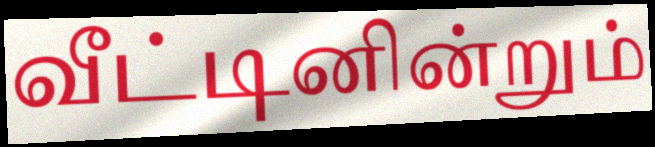
வீட்டினின்றும்